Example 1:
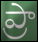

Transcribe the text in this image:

ప్రా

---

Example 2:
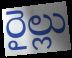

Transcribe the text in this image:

రైల్లు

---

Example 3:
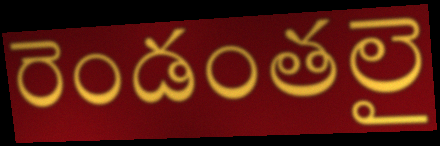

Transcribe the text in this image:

రెండంతలై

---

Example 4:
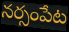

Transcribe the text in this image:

నర్సంపేట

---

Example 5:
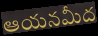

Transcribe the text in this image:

ఆయనమీద